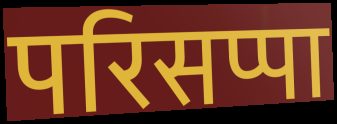
परिसप्पा